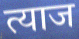
त्याज